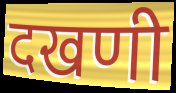
दखणी